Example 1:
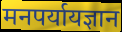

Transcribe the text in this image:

मनपर्यायज्ञान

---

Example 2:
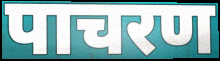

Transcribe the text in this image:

पाचरण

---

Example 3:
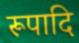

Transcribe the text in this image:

रूपादि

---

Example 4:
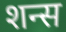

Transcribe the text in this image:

शन्स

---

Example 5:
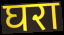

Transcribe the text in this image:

घरा